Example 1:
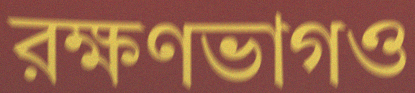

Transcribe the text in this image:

রক্ষণভাগও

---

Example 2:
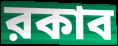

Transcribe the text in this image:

রকাব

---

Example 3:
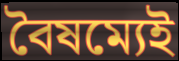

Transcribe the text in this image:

বৈষম্যেই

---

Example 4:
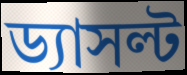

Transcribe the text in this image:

ড্যাসল্ট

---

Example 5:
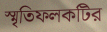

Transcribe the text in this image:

স্মৃতিফলকটির